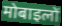
मोबाइलों